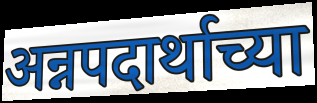
अन्नपदार्थाच्या